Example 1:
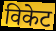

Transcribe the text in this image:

विकेट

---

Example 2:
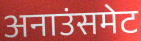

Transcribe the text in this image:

अनाउंसमेट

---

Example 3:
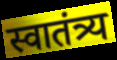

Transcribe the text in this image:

स्वातंत्र्य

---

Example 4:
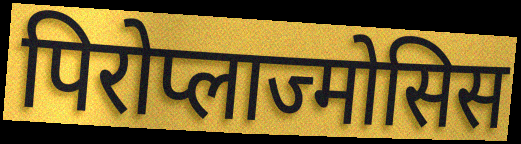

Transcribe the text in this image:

पिरोप्लाज्मोसिस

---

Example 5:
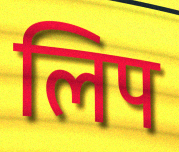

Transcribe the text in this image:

लिप